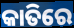
କାତିରେ